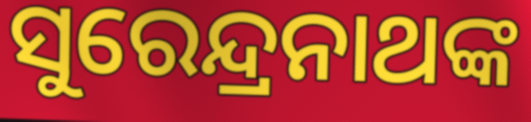
ସୁରେନ୍ଦ୍ରନାଥଙ୍କ